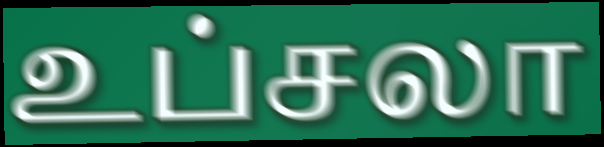
உப்சலா